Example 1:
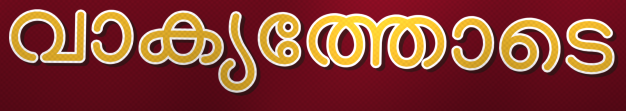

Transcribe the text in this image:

വാക്യത്തോടെ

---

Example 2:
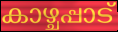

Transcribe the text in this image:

കാഴ്ചപ്പാട്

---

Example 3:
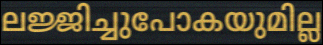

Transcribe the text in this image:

ലജ്ജിച്ചുപോകയുമില്ല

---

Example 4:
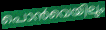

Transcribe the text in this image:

പൊൻവെയിലും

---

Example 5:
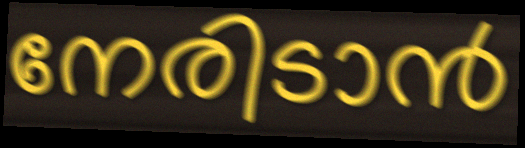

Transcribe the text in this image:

നേരിടാൻ